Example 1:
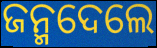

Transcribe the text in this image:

ଜନ୍ମଦେଲେ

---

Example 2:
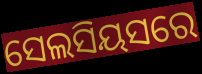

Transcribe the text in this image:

ସେଲସିୟସରେ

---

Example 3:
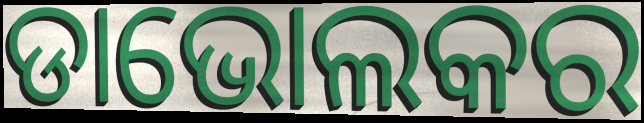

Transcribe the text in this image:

ଡାଭୋଲକର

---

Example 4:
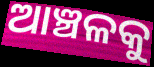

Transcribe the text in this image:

ଆଞ୍ଚଳକୁ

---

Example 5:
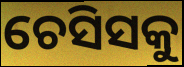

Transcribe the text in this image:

ଚେସିସକୁ